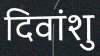
दिवांशु